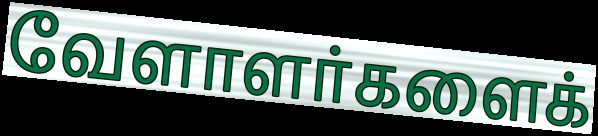
வேளாளர்களைக்